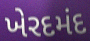
ખેરદમંદ